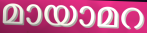
മായാമറ